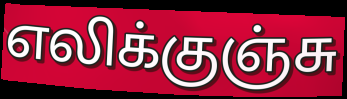
எலிக்குஞ்சு